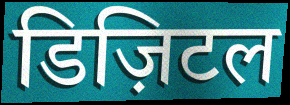
डिज़िटल